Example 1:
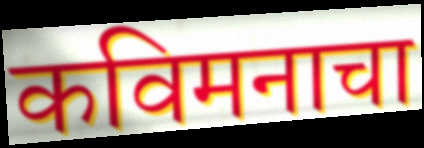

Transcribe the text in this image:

कविमनाचा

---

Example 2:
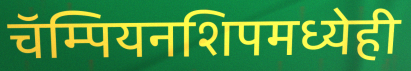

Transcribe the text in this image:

चॅम्पियनशिपमध्येही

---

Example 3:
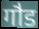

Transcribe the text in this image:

गौड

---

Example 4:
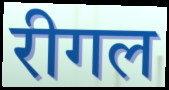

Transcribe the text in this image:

रीगल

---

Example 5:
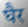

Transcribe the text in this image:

घैर